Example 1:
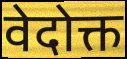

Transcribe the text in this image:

वेदोक्त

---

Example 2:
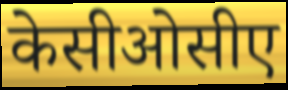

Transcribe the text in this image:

केसीओसीए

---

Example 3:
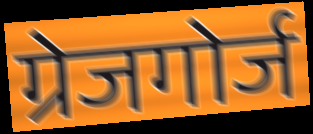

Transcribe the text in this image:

ग्रेजगोर्ज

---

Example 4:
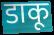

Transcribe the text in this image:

डाकू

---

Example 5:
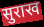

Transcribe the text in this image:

सुराख